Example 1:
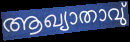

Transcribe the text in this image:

ആഖ്യാതാവു്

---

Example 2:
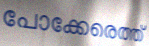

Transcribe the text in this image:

പോക്കേരെത്ത്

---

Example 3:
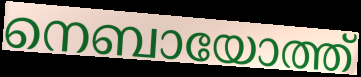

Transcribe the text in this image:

നെബായോത്ത്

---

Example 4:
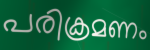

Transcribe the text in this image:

പരിക്രമണം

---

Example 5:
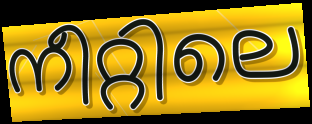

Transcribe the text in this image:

നീറ്റിലെ